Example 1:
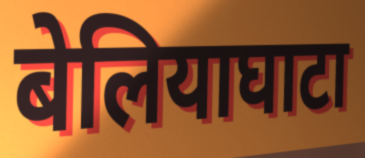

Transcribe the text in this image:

बेलियाघाटा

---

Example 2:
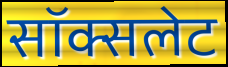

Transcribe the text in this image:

सॉक्सलेट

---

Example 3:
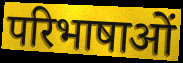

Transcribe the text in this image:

परिभाषाओं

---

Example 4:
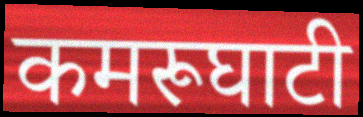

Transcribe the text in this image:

कमरूघाटी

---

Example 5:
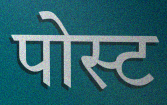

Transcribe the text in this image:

पोस्‍ट